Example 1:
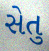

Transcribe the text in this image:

સેતુ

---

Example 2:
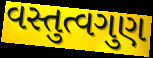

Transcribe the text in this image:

વસ્તુત્વગુણ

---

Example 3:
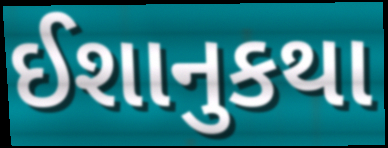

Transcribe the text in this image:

ઈશાનુકથા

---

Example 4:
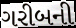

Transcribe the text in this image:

ગરીબની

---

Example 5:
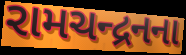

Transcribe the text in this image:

રામચન્દ્રનના